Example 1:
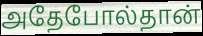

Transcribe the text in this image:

அதேபோல்தான்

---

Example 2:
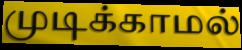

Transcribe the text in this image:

முடிக்காமல்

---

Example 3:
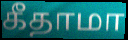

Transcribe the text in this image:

கீதாமா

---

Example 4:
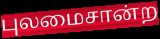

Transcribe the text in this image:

புலமைசான்ற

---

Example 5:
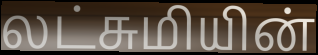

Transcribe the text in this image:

லட்சுமியின்